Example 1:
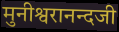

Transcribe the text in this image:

मुनीश्वरानन्दजी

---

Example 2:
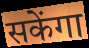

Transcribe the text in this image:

सकेंगा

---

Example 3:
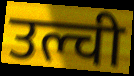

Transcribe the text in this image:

उल्ची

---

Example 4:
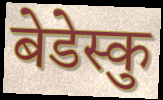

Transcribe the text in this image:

बेडेस्कु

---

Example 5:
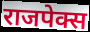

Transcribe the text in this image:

राजपेक्स